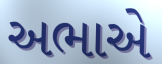
અભાએ